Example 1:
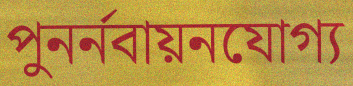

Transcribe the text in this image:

পুনর্নবায়নযোগ্য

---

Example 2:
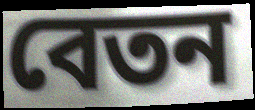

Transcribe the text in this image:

বেতন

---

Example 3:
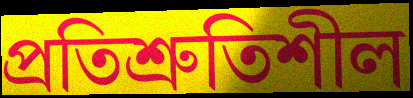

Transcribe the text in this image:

প্রতিশ্রুতিশীল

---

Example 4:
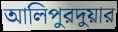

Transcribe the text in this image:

আলিপুরদুয়ার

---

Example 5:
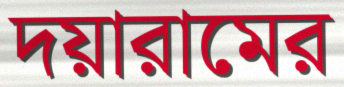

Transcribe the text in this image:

দয়ারামের